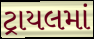
ટ્રાયલમાં